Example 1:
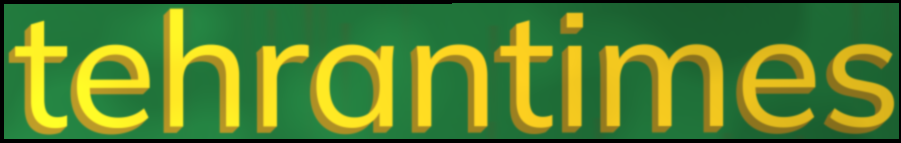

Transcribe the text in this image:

tehrantimes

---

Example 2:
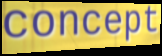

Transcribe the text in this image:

concept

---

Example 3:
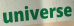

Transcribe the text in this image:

universe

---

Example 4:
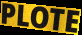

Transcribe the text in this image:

PLOTE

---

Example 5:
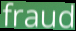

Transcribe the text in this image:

fraud